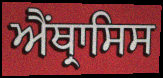
ਐਂਥ੍ਰਾਸਿਸ